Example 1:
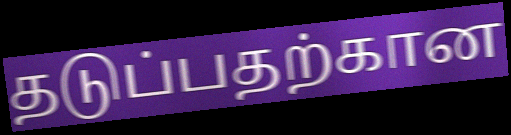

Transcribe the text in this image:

தடுப்பதற்கான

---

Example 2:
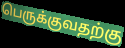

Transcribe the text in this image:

பெருக்குவதற்கு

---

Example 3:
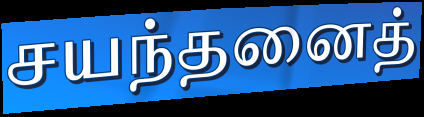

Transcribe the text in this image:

சயந்தனைத்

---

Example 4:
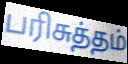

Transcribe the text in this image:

பரிசுத்தம்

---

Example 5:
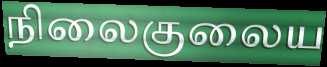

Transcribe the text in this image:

நிலைகுலைய